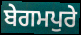
ਬੇਗਮਪੁਰੇ